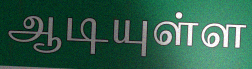
ஆடியுள்ள